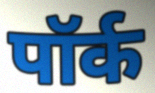
पॉर्क